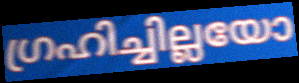
ഗ്രഹിച്ചില്ലയോ